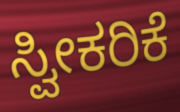
ಸ್ವೀಕರಿಕೆ